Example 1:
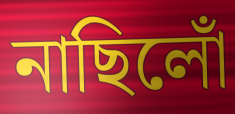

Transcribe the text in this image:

নাছিলোঁ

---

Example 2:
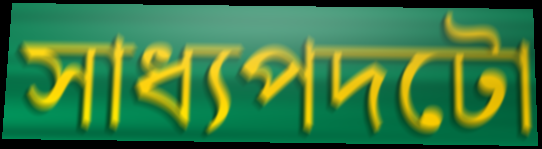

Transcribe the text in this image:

সাধ্যপদটো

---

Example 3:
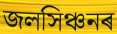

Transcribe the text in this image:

জলসিঞ্চনৰ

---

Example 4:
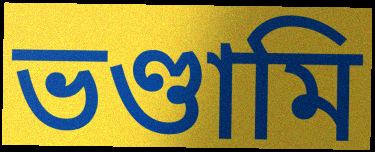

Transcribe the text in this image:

ভণ্ডামি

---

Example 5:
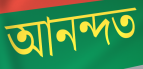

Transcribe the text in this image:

আনন্দত